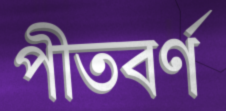
পীতবর্ণ